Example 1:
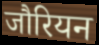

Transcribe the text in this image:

जौरियन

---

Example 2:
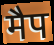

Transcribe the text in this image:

मैप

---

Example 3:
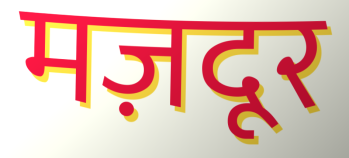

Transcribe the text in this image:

मज़दूर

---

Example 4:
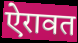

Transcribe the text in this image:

ऐरावत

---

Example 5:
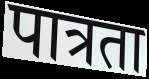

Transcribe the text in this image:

पात्रता